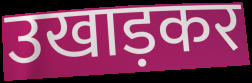
उखाड़कर